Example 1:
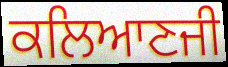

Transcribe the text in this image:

ਕਲਿਆਣਜੀ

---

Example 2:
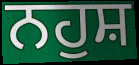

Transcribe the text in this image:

ਨਹੁਸ਼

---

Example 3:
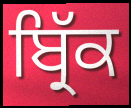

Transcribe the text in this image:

ਬ੍ਰਿੱਕ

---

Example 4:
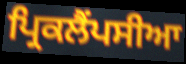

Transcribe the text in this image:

ਪ੍ਰਿਕਲੈਂਪਸੀਆ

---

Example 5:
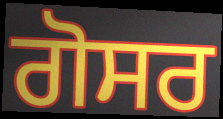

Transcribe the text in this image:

ਗੋਸਰ